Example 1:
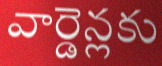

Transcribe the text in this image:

వార్డెన్లకు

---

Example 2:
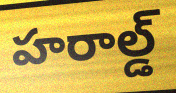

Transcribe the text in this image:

హరాల్డ్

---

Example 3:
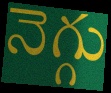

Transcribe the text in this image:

నెగ్గు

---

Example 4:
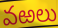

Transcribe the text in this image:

వఱలు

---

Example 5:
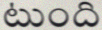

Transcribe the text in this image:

టుంది